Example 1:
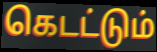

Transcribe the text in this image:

கெடட்டும்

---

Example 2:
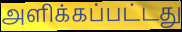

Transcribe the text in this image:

அளிக்கப்பட்டது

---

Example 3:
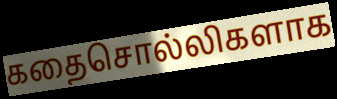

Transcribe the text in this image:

கதைசொல்லிகளாக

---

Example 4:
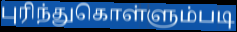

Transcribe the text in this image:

புரிந்துகொள்ளும்படி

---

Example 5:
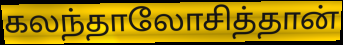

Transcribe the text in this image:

கலந்தாலோசித்தான்